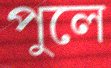
পুলে